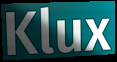
Klux